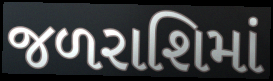
જળરાશિમાં